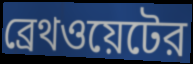
ব্রেথওয়েটের